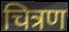
चित्रण